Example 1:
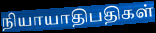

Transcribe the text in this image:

நியாயாதிபதிகள்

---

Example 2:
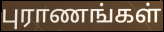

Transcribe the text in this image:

புராணங்கள்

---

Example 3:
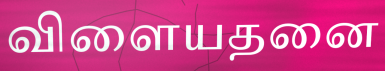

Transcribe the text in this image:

விளையதனை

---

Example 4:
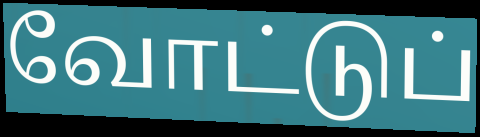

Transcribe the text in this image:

வோட்டுப்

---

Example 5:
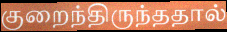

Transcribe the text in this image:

குறைந்திருந்ததால்